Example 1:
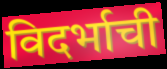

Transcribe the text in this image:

विदर्भाची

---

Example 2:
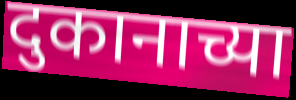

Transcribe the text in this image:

दुकानाच्या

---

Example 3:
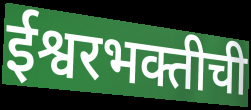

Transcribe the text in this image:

ईश्वरभक्तीची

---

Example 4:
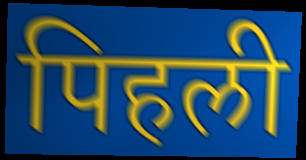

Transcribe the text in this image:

पिहली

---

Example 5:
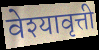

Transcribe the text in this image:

वेश्यावृत्ती